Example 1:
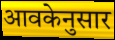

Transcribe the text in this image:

आवकेनुसार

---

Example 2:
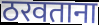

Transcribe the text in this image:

ठरवताना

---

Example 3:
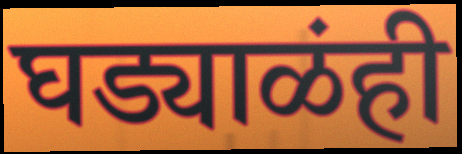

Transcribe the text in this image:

घड्याळंही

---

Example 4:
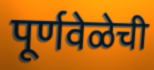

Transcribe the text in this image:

पूर्णवेळेची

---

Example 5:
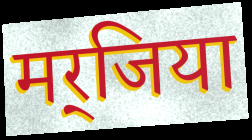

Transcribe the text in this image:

मर्जिया